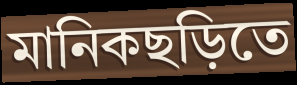
মানিকছড়িতে